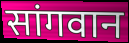
सांगवान